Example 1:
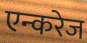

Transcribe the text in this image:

एन्करेज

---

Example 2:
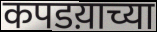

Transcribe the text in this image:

कपडय़ाच्या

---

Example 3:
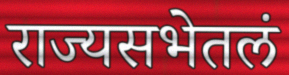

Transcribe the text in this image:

राज्यसभेतलं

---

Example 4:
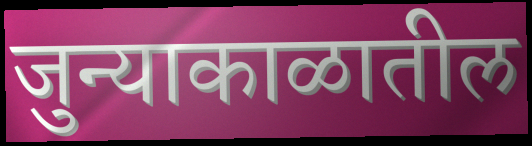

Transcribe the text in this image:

जुन्याकाळातील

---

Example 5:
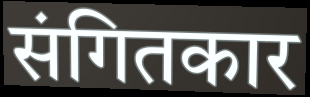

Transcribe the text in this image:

संगितकार